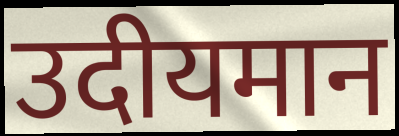
उदीयमान